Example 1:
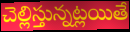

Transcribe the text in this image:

చెల్లిస్తున్నట్లయితే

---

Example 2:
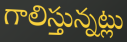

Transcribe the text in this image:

గాలిస్తున్నట్లు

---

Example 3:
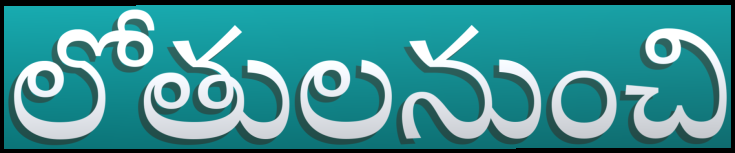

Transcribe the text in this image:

లోతులనుంచి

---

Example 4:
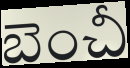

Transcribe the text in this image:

బెంచీ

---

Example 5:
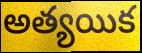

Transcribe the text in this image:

అత్యయిక